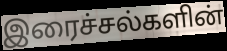
இரைச்சல்களின்